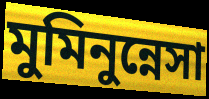
মুমিনুন্নেসা